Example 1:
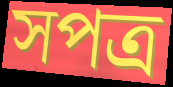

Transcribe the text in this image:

সপত্র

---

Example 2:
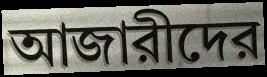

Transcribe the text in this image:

আজারীদের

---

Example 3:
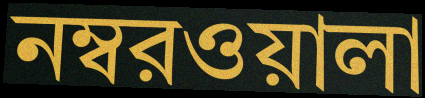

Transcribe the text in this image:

নম্বরওয়ালা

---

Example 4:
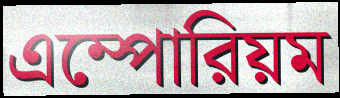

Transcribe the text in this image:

এম্পোরিয়ম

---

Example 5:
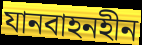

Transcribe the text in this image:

যানবাহনহীন